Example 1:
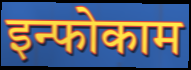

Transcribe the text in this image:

इन्फोकाम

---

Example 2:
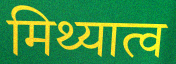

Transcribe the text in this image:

मिथ्यात्व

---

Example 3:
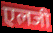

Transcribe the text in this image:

एलजी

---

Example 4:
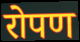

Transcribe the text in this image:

रोपण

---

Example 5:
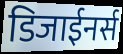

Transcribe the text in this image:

डिजाईनर्स